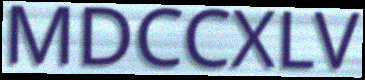
MDCCXLV